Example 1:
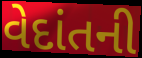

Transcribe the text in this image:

વેદાંતની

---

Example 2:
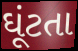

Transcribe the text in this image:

ઘૂંટતા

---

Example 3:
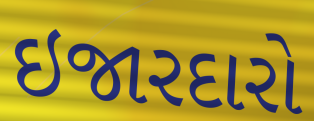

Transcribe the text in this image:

ઇજારદારો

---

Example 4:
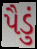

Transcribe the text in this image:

પૈડું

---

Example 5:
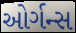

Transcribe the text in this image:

ઓર્ગન્સ